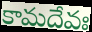
కామదేవః